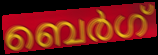
ബെർഗ്